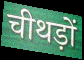
चीथड़ों